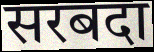
सरबदा